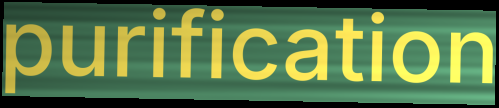
purification